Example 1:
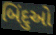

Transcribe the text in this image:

બિંદુઓ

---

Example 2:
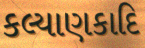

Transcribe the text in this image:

કલ્યાણકાદિ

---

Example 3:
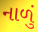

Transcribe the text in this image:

નાળું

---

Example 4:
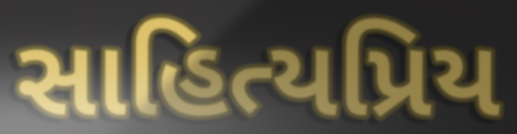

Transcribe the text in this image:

સાહિત્યપ્રિય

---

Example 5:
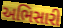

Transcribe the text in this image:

અભિસારી